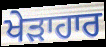
ਖੇੜਾਹਾਰ